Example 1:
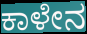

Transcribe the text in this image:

ಕಾಳೇನ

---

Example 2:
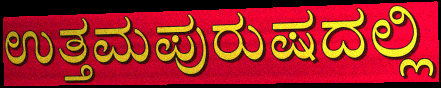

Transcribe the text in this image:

ಉತ್ತಮಪುರುಷದಲ್ಲಿ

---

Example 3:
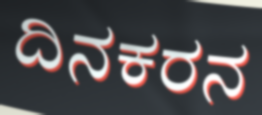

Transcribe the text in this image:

ದಿನಕರನ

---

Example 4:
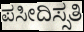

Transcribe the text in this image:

ಪಸೀದಿಸ್ಸತಿ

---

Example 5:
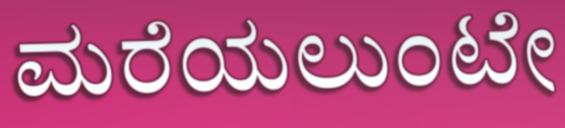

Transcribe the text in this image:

ಮರೆಯಲುಂಟೇ